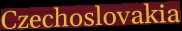
Czechoslovakia